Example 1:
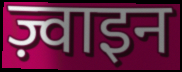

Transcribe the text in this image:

ज़्वाइन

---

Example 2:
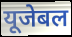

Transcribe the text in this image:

यूजेबल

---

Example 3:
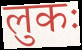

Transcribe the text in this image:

लुकः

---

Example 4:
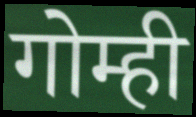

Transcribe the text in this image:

गोम्ही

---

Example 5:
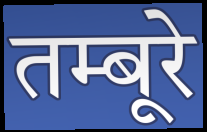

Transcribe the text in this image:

तम्बूरे